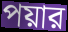
পয়ার